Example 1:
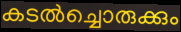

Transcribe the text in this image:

കടൽച്ചൊരുക്കും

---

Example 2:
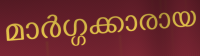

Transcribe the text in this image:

മാർഗ്ഗക്കാരായ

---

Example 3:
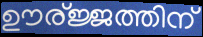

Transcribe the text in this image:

ഊര്ജ്ജത്തിന്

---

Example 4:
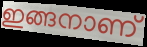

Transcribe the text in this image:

ഇങ്ങനാണ്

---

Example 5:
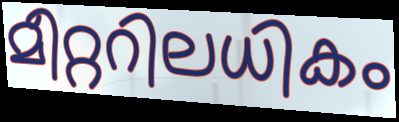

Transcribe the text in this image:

മീറ്ററിലധികം